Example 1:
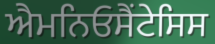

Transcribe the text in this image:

ਐਮਨਿਓਸੈਂਟੇਸਿਸ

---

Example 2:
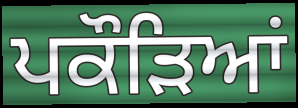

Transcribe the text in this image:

ਪਕੌਡ਼ਿਆਂ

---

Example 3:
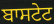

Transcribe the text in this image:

ਬਾਸਟੇਟ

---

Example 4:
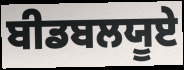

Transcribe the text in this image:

ਬੀਡਬਲਯੂਏ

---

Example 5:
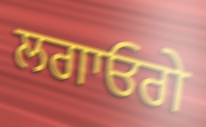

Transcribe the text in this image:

ਲਗਾਓਗੇ